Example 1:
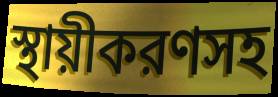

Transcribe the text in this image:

স্থায়ীকরণসহ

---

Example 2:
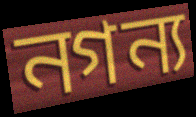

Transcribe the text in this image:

নগন্য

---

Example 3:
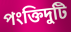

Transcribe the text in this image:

পংক্তিদুটি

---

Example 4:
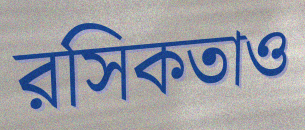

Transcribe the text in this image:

রসিকতাও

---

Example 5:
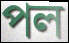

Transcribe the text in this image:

পল